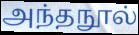
அந்தநூல்